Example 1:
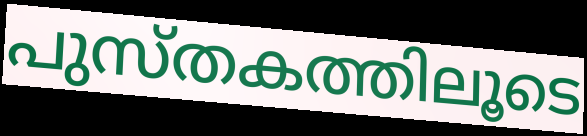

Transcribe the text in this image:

പുസ്തകത്തിലൂടെ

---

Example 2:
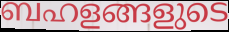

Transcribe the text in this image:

ബഹളങ്ങളുടെ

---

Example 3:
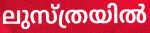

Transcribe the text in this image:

ലുസ്ത്രയിൽ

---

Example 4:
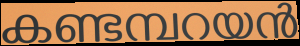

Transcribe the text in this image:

കണ്ടമ്പറയൻ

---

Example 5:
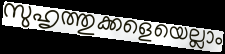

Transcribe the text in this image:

സുഹൃത്തുക്കളെയെല്ലാം